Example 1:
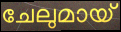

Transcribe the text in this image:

ചേലുമായ്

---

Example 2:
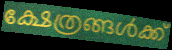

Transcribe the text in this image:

ക്ഷേത്രങ്ങൾക്ക്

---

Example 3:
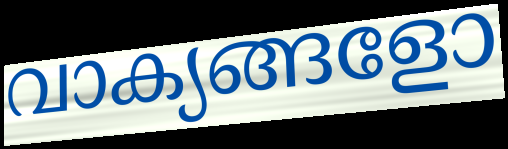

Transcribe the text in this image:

വാക്യങ്ങളോ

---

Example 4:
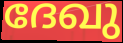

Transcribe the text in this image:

ദേഖു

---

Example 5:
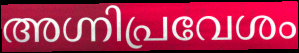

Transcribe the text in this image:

അഗ്നിപ്രവേശം